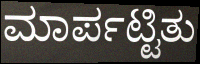
ಮಾರ್ಪಟ್ಟಿತು